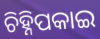
ଚିହ୍ନିପକାଇ